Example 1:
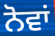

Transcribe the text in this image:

ਨੋਵਾਂ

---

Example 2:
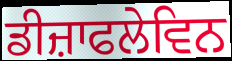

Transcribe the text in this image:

ਡੀਜ਼ਾਫਲੇਵਿਨ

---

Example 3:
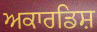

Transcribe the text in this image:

ਅਕਾਰਡਿਸ਼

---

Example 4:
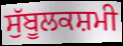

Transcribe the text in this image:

ਸੁੱਬੂਲਕਸ਼ਮੀ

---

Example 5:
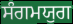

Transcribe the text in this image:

ਸੰਗਮਯੁਗ